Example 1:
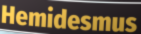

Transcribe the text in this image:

Hemidesmus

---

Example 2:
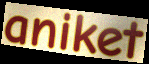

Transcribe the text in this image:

aniket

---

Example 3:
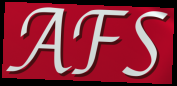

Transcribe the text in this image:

AFS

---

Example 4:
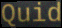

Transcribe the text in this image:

Quid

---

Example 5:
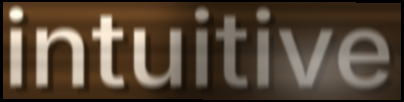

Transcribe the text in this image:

intuitive